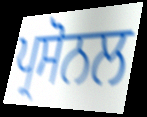
ਪ੍ਰਸੋਨਲ